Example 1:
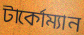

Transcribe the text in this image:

টার্কোম্যান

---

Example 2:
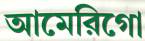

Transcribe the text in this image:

আমেরিগো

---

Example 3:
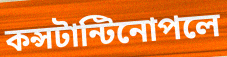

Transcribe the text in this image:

কন্সটান্টিনোপলে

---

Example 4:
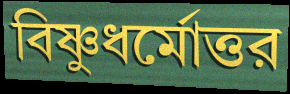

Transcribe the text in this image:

বিষ্ণুধর্মোত্তর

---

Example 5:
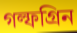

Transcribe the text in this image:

গল্ফগ্রিন